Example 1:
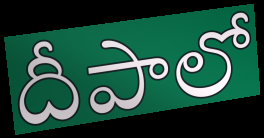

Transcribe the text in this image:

దీపాలో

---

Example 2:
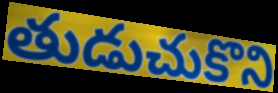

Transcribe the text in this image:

తుడుచుకొని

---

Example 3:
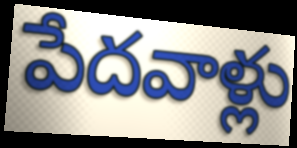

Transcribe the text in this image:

పేదవాళ్లు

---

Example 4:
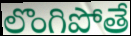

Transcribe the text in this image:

లొంగిపోతే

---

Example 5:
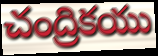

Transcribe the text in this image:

చంద్రికయు